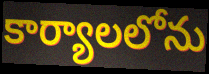
కార్యాలలోను